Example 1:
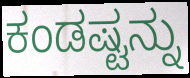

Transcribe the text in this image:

ಕಂಡಷ್ಟನ್ನು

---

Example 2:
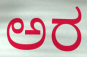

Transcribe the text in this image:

ಅರ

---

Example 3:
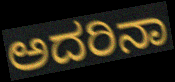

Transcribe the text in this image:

ಅದರಿನಾ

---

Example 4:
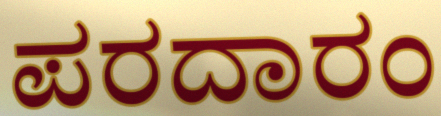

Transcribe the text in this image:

ಪರದಾರಂ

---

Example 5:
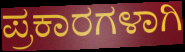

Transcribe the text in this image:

ಪ್ರಕಾರಗಳಾಗಿ